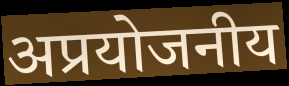
अप्रयोजनीय